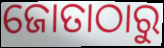
ଜୋତାଠାରୁ